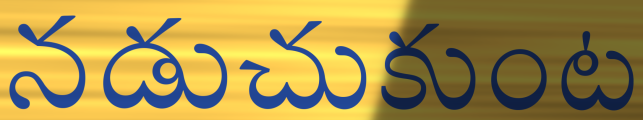
నడుచుకుంట